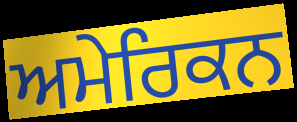
ਅਮੇਰਿਕਨ